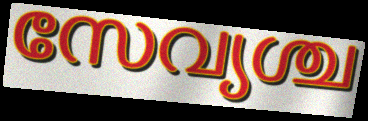
സേവ്യശ്ച